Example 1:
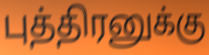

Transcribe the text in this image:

புத்திரனுக்கு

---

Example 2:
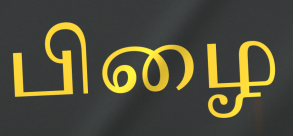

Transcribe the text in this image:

பிழை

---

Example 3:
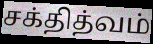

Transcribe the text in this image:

சக்தித்வம்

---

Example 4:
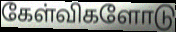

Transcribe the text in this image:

கேள்விகளோடு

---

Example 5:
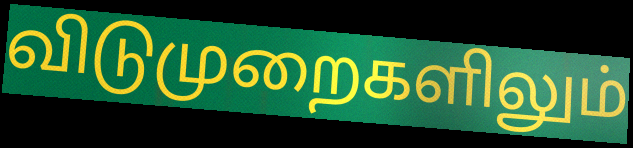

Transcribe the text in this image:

விடுமுறைகளிலும்